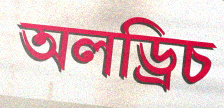
অলড্রিচ